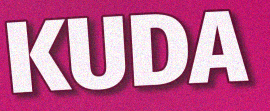
KUDA